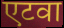
एटवा